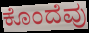
ಕೊಂದೆವು